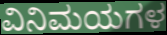
ವಿನಿಮಯಗಳ